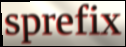
sprefix